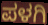
ಪಳಗಿ